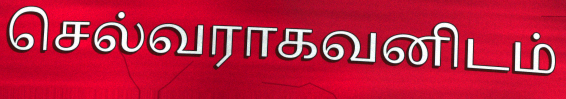
செல்வராகவனிடம்